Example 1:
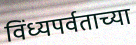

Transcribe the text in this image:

विंध्यपर्वताच्या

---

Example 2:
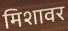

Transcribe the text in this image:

मिशावर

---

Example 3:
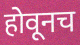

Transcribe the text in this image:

होवूनच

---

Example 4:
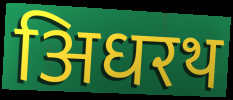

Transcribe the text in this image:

अिधरथ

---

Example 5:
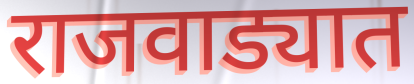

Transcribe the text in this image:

राजवाड्यात